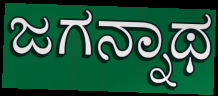
ಜಗನ್ನಾಥ